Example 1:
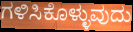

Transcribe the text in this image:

ಗಳಿಸಿಕೊಳ್ಳುವುದು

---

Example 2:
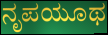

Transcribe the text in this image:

ನೃಪಯೂಥ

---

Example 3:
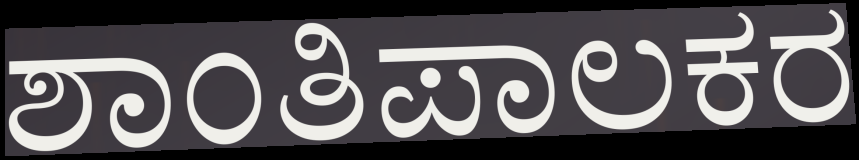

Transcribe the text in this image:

ಶಾಂತಿಪಾಲಕರ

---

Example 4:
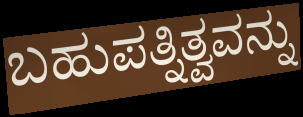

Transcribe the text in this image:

ಬಹುಪತ್ನಿತ್ವವನ್ನು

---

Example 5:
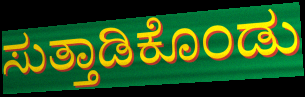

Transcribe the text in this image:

ಸುತ್ತಾಡಿಕೊಂಡು